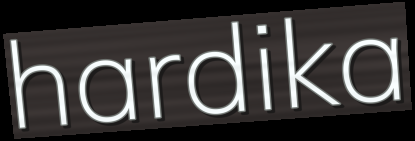
hardika